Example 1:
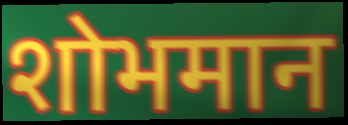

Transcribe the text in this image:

शोभमान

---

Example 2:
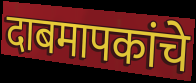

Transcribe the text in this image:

दाबमापकांचे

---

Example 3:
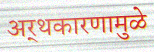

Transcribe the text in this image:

अर्थकारणामुळे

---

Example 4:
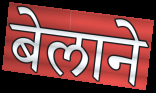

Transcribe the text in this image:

बेलाने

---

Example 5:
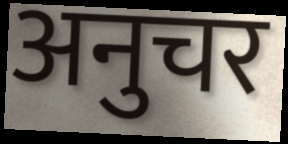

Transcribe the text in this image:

अनुचर